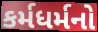
કર્મધર્મનો